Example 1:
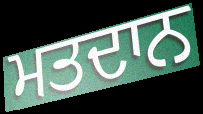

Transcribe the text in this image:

ਮਤਦਾਨ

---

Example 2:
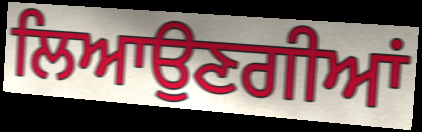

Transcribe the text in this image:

ਲਿਆਉਣਗੀਆਂ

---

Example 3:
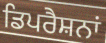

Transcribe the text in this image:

ਡਿਪਰੈਸ਼ਨਾਂ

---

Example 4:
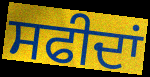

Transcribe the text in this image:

ਸਫੀਦਾਂ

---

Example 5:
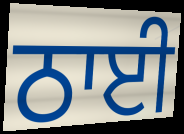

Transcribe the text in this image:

ਠਾਈ